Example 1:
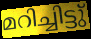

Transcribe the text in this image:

മറിച്ചിട്ടു്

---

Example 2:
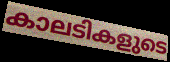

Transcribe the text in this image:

കാലടികളുടെ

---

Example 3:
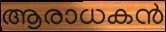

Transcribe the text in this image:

ആരാധകൻ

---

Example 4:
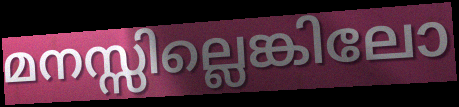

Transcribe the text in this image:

മനസ്സില്ലെങ്കിലോ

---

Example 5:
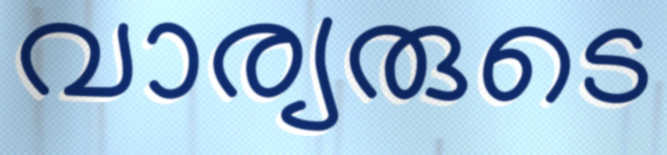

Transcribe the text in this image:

വാര്യരുടെ